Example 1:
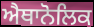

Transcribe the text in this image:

ਐਥਾਨੋਲਿਕ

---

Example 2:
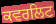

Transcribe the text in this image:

ਕਵਰਲਿਟ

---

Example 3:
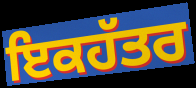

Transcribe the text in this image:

ਇਕਹੱਤਰ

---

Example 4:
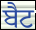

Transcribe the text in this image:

ਬੈਟ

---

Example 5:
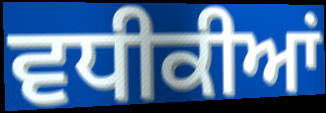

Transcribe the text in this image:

ਵਧੀਕੀਆਂ